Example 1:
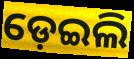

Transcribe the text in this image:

ଡ଼େଇଲି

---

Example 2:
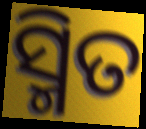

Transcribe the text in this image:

ସ୍ମିତ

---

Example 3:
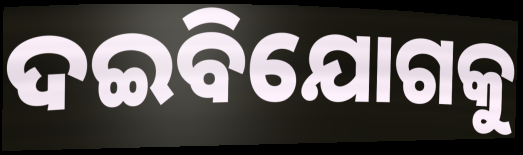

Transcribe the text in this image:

ଦଇବିଯୋଗକୁ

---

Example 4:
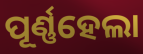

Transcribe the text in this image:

ପୂର୍ଣ୍ଣହେଲା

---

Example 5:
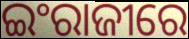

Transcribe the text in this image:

ଇଂରାଜୀରେ